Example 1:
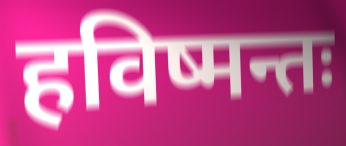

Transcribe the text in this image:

हविष्मन्तः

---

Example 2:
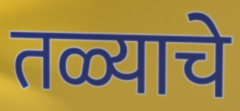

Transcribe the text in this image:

तळ्याचे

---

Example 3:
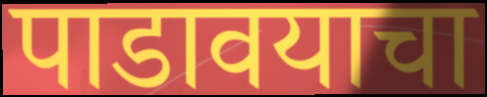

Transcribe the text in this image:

पाडावयाचा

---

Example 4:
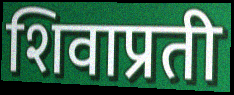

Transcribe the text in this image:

शिवाप्रती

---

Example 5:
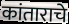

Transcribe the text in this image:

कांताराचे